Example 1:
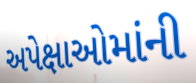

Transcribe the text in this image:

અપેક્ષાઓમાંની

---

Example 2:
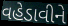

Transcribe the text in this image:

વહેડાવીને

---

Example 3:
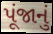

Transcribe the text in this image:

પૂંજાનું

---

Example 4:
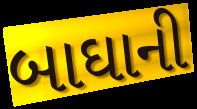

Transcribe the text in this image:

બાઘાની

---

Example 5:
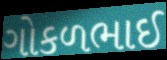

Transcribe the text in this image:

ગોકળભાઈ